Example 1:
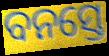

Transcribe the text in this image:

ବନସ୍ତେ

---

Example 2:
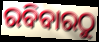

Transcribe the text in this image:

ରବିବାରଠୁ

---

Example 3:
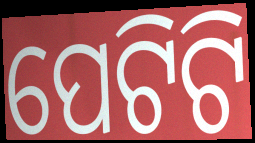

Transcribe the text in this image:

ପେଟିଟି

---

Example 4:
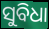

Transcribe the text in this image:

ସୁବିଧା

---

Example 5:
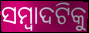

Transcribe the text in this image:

ସମ୍ୱାଦଟିକୁ